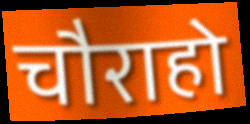
चौराहो